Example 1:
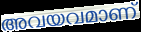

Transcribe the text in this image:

അവയവമാണ്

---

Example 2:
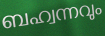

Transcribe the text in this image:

ബഹ്വന്നവും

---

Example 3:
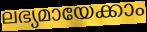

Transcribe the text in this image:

ലഭ്യമായേക്കാം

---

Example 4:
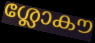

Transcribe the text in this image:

ശ്ലോകൗ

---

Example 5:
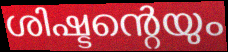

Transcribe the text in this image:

ശിഷ്ടന്റെയും